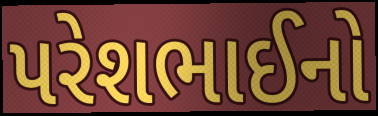
પરેશભાઈનો